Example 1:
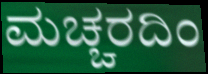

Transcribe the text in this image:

ಮಚ್ಚರದಿಂ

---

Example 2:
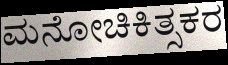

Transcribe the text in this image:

ಮನೋಚಿಕಿತ್ಸಕರ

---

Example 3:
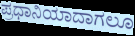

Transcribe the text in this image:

ಪ್ರಧಾನಿಯಾದಾಗಲೂ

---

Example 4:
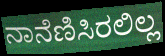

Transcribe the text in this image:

ನಾನೆಣಿಸಿರಲಿಲ್ಲ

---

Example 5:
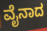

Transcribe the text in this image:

ವೈನಾದ